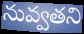
నువ్వతని